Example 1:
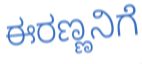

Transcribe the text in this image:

ಈರಣ್ಣನಿಗೆ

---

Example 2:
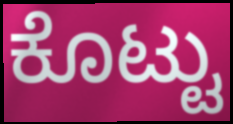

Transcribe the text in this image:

ಕೊಟ್ಟು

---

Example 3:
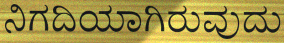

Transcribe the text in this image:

ನಿಗದಿಯಾಗಿರುವುದು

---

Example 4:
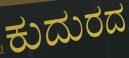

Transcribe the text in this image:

ಕುದುರದ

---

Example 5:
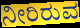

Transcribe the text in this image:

ನೀರಿರುವ